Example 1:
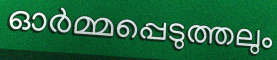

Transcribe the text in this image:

ഓർമ്മപ്പെടുത്തലും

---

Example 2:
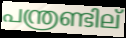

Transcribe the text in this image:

പന്ത്രണ്ടില്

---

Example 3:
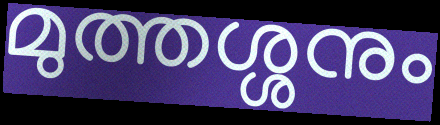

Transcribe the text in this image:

മുത്തശ്ശനും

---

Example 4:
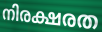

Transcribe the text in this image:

നിരക്ഷരത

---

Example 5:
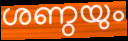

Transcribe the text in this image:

ശണ്ഠയും